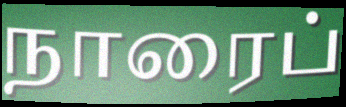
நாரைப்